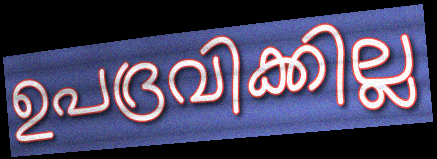
ഉപദ്രവിക്കില്ല